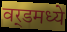
वर्डमध्ये